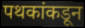
पथकांकडून